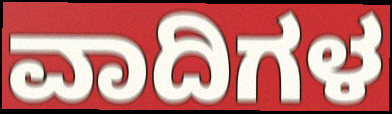
ವಾದಿಗಳ